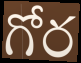
గోర